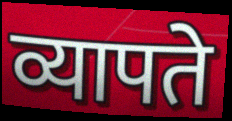
व्यापते